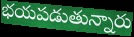
భయపడుతున్నారు